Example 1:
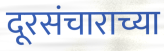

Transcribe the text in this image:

दूरसंचाराच्या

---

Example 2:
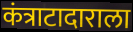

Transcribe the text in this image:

कंत्राटादाराला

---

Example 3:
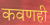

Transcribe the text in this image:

कवणही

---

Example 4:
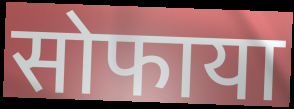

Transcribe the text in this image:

सोफाया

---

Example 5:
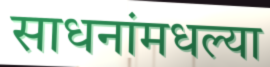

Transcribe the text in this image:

साधनांमधल्या